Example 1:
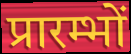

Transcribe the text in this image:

प्रारम्भों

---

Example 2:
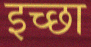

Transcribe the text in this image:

इच्‍छा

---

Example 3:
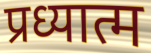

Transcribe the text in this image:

प्रध्यात्म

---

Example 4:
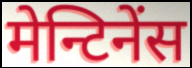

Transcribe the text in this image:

मेन्टिनेंस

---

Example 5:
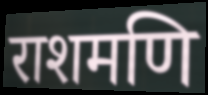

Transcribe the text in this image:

राशमणि